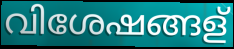
വിശേഷങ്ങള്